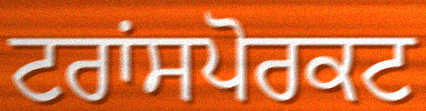
ਟਰਾਂਸਪੋਰਕਟ